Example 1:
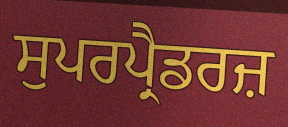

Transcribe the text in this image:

ਸੁਪਰਪ੍ਰੈਡਰਜ਼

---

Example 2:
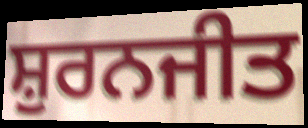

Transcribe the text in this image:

ਸ਼ੁਰਨਜੀਤ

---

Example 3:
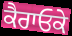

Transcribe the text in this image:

ਕੈਰਾਓਕੇ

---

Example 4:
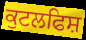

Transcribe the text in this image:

ਕੁਟਲਫਿਸ਼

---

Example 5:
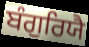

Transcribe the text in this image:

ਬੰਗੁਰਿਯੈ